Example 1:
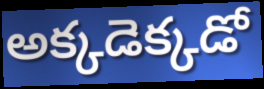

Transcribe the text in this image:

అక్కడెక్కడో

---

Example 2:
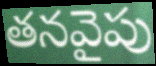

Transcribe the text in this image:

తనవైపు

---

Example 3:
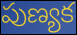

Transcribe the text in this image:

పుణ్యక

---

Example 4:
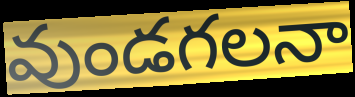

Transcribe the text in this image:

వుండగలనా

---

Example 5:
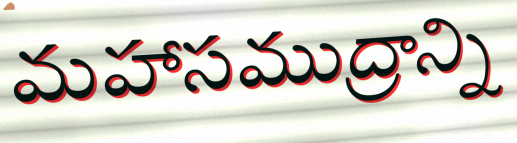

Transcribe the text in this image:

మహాసముద్రాన్ని